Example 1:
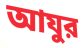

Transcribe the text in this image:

আযুর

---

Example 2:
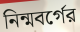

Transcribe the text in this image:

নিন্মবর্গের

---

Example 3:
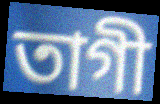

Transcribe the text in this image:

তাগী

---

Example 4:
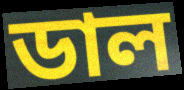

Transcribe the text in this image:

ডাল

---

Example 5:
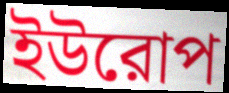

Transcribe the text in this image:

ইউরোপ